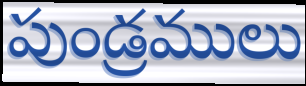
పుండ్రములు